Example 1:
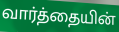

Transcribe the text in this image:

வார்த்தையின்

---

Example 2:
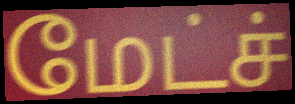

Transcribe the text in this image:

மேட்ச்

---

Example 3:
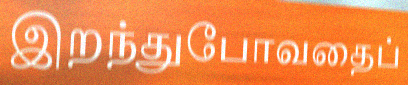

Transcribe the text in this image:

இறந்துபோவதைப்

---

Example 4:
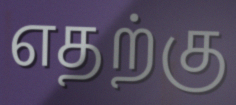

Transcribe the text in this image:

எதற்கு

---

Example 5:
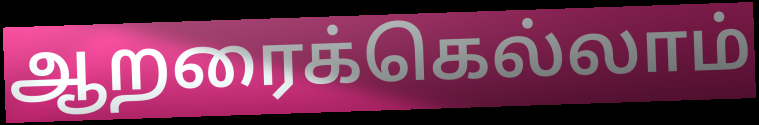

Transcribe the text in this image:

ஆறரைக்கெல்லாம்